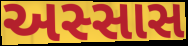
અસ્સાસ